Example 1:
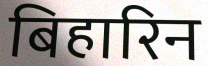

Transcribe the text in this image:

बिहारिन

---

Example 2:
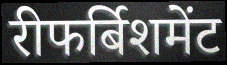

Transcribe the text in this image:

रीफर्बिशमेंट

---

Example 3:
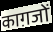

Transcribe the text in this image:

काग़जों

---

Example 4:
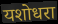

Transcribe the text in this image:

यशोधरा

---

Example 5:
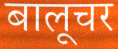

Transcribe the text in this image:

बालूचर